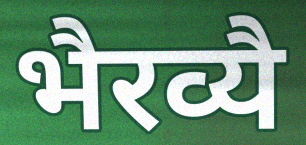
भैरव्यै